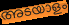
അടയാളം